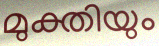
മുക്തിയും